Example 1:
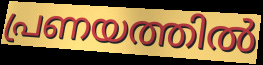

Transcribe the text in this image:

പ്രണയത്തിൽ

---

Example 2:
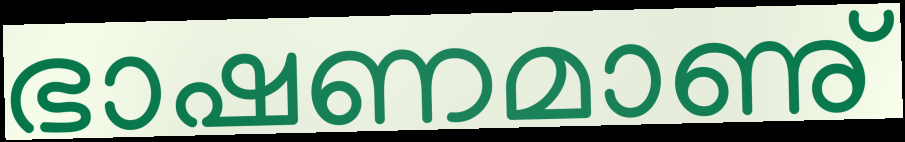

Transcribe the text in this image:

ഭാഷണമാണു്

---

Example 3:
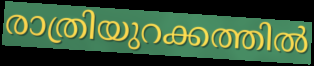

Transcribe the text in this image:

രാത്രിയുറക്കത്തിൽ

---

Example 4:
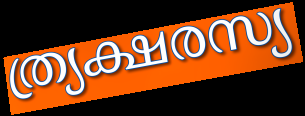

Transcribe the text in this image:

ത്ര്യക്ഷരസ്യ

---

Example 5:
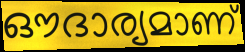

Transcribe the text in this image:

ഔദാര്യമാണ്